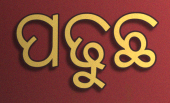
ପଢୁଛ